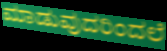
ಮಾಡುವುದರಿಂದಲೆ